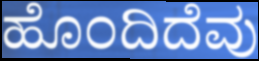
ಹೊಂದಿದೆವು